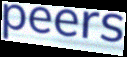
peers